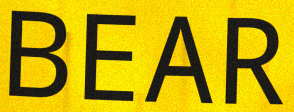
BEAR